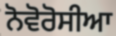
ਨੋਵੋਰੋਸੀਆ